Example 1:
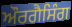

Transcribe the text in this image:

ਔਰਗੈਸਿੰਗ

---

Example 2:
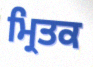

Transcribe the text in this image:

ਮ੍ਰਿਤਕ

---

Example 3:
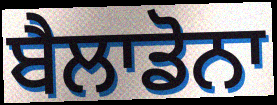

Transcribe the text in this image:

ਬੈਲਾਡੋਨਾ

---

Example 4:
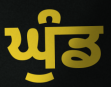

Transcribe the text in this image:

ਘੁੰਡ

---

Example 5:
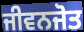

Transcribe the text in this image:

ਜੀਵਨਜੋਤ